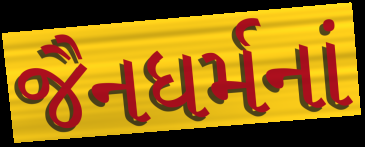
જૈનધર્મનાં